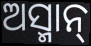
ଅସ୍ମାନ୍